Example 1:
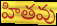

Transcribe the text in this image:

హితవు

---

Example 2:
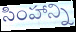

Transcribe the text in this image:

సింహాన్ని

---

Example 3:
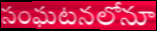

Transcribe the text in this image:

సంఘటనలోనూ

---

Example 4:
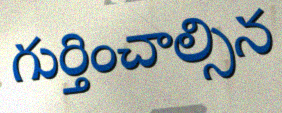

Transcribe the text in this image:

గుర్తించాల్సిన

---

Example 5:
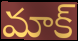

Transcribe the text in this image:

మాక్